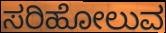
ಸರಿಹೋಲುವ